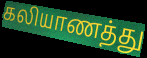
கலியாணத்து